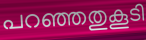
പറഞ്ഞതുകൂടി